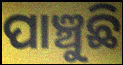
ପାଞ୍ଚୁଛି